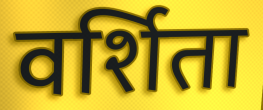
वर्शिता